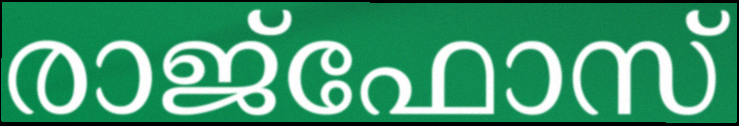
രാജ്ഫോസ്